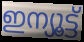
ഇന്യൂട്ട്